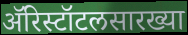
ॲरिस्टॉटलसारख्या